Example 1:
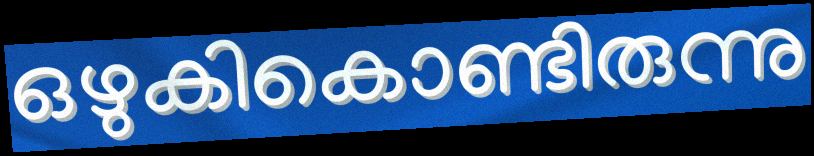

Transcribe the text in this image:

ഒഴുകികൊണ്ടിരുന്നു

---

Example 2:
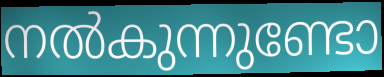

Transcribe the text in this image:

നൽകുന്നുണ്ടോ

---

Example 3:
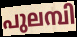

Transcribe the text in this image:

പുലമ്പി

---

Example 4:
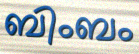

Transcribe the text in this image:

ബിംബം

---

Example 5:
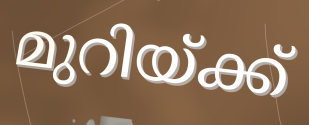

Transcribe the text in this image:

മുറിയ്ക്ക്